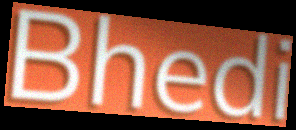
Bhedi